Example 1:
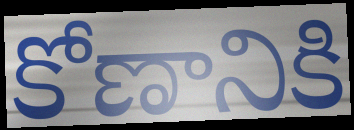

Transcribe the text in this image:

కోణానికి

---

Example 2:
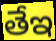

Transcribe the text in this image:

తేఇ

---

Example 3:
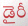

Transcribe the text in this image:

డైరీ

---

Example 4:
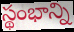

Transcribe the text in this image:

స్థంభాన్ని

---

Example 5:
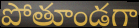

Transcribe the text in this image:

పోతూండగా